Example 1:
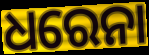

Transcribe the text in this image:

ଧରେନା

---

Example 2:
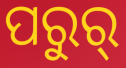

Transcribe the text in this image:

ପରୁର୍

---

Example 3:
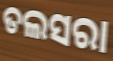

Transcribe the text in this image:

ତଲସରା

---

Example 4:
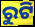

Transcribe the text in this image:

ରୁଟି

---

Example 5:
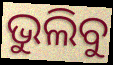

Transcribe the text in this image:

ଭୁଲିବୁ